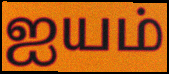
ஐயம்